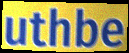
uthbe